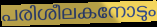
പരിശീലകനോടും